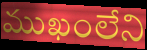
ముఖంలేని